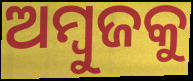
ଅମ୍ବୁଜକୁ